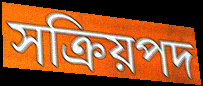
সক্রিয়পদ